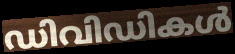
ഡിവിഡികൾ